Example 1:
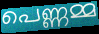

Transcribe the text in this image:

പെണ്ണമ്മ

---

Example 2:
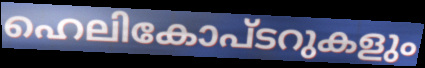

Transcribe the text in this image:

ഹെലികോപ്ടറുകളും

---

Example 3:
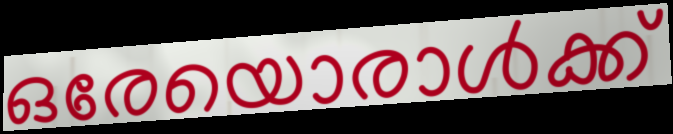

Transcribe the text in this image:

ഒരേയൊരാൾക്ക്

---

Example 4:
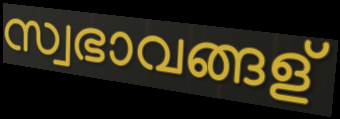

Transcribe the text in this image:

സ്വഭാവങ്ങള്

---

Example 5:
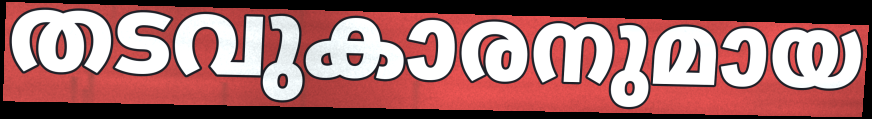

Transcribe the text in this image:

തടവുകാരനുമായ